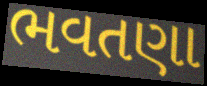
ભવતણા